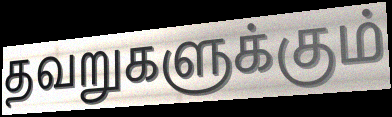
தவறுகளுக்கும்